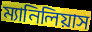
ম্যানিলিয়াস